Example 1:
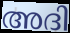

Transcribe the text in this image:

അദി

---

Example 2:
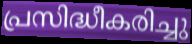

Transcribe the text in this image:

പ്രസിദ്ധീകരിച്ചു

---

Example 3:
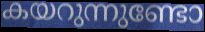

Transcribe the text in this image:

കയറുന്നുണ്ടോ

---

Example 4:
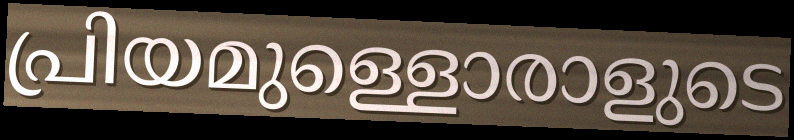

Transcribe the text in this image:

പ്രിയമുള്ളൊരാളുടെ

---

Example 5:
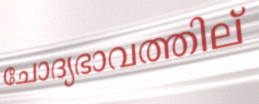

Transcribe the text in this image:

ചോദ്യഭാവത്തില്